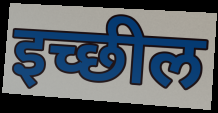
इच्छील